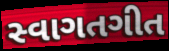
સ્વાગતગીત